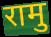
रामु